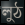
লুঠ